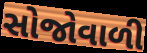
સોજોવાળી